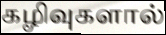
கழிவுகளால்